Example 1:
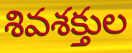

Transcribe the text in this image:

శివశక్తుల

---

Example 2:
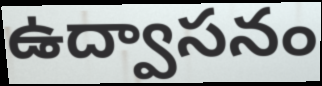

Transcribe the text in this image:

ఉద్వాసనం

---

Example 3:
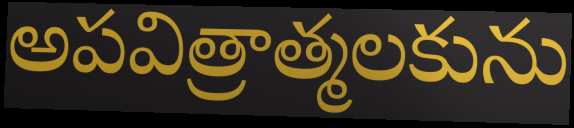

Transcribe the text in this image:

అపవిత్రాత్మలకును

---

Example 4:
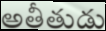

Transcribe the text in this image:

అతీతుడు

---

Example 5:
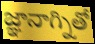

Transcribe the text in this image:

జ్ఞానాగ్నితో